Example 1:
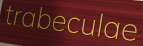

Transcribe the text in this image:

trabeculae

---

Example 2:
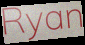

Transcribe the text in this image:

Ryan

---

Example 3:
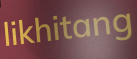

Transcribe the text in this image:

likhitang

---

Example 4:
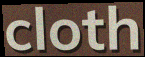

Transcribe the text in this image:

cloth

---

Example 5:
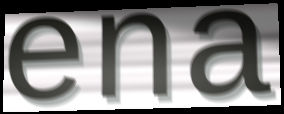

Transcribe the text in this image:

ena